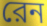
রেন